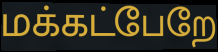
மக்கட்பேறே